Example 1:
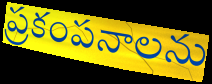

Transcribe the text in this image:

ప్రకంపనాలను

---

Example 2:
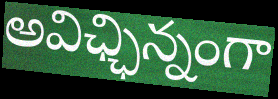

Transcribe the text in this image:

అవిఛ్ఛిన్నంగా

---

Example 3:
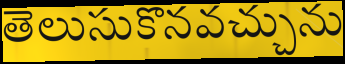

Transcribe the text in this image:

తెలుసుకొనవచ్చును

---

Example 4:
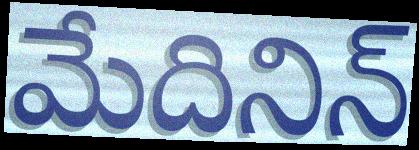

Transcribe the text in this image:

మేదినిన్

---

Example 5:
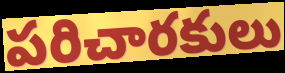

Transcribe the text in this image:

పరిచారకులు